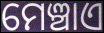
ମେଞ୍ଚାଏ